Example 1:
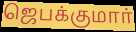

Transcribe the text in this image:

ஜெபக்குமார்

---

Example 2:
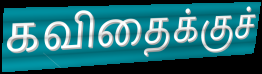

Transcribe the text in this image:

கவிதைக்குச்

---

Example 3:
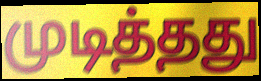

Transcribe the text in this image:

முடித்தது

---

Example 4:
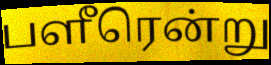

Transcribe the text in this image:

பளீரென்று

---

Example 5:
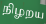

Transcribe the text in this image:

நிழறய